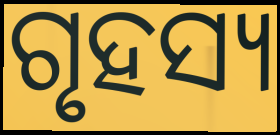
ଗୃହସ୍ୟ